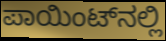
ಪಾಯಿಂಟ್‌ನಲ್ಲಿ